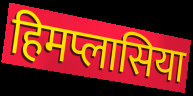
हिमप्लासिया